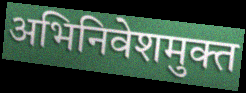
अभिनिवेशमुक्त